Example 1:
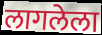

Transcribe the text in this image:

लागलेला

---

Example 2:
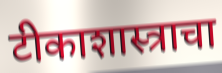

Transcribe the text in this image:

टीकाशास्त्राचा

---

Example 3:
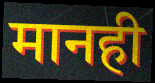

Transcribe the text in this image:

मानही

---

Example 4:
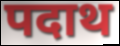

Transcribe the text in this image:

पदाथ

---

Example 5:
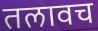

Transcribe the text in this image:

तलावच